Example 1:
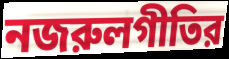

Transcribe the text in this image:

নজরুলগীতির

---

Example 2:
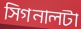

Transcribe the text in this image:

সিগনালটা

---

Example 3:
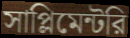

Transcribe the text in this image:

সাপ্লিমেন্টরি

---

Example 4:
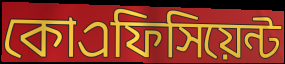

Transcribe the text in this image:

কোএফিসিয়েন্ট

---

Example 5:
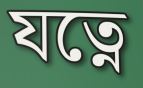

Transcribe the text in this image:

যত্নে